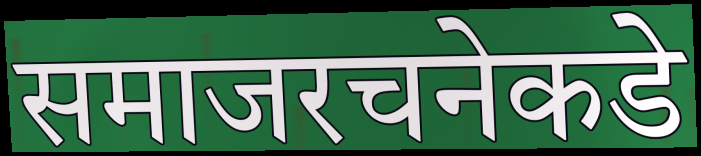
समाजरचनेकडे